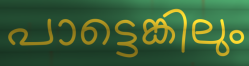
പാട്ടെങ്കിലും